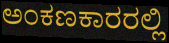
ಅಂಕಣಕಾರರಲ್ಲಿ